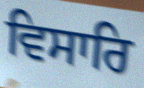
ਵਿਸਾਰਿ